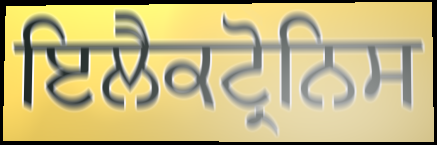
ਇਲੈਕਟ੍ਰੋਨਿਸ